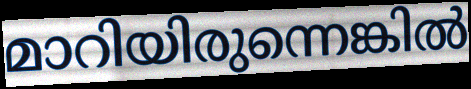
മാറിയിരുന്നെങ്കിൽ